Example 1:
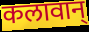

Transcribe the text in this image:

कलावान्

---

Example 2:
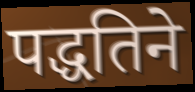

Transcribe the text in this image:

पद्धतिने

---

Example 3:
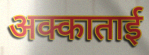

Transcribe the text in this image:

अक्काताई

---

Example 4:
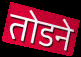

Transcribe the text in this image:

तोडने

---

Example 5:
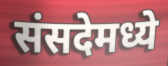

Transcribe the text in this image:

संसदेमध्ये